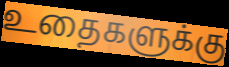
உதைகளுக்கு